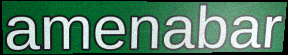
amenabar